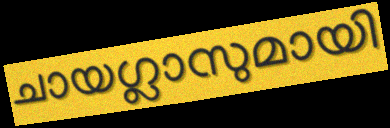
ചായഗ്ലാസുമായി